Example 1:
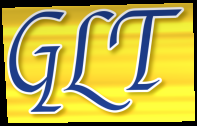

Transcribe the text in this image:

GLT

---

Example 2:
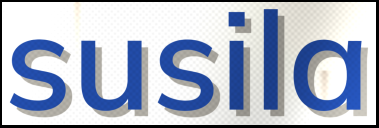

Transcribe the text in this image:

susila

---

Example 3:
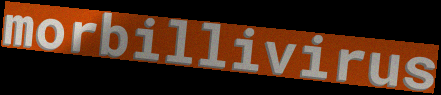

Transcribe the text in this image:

morbillivirus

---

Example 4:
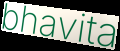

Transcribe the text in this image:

bhavita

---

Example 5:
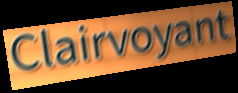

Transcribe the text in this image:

Clairvoyant